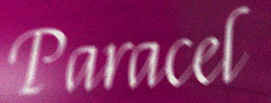
Paracel